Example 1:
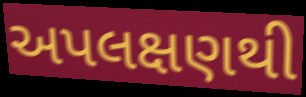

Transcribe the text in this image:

અપલક્ષણથી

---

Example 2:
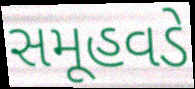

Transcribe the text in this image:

સમૂહવડે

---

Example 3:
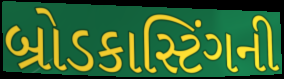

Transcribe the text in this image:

બ્રોડકાસ્ટિંગની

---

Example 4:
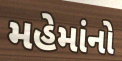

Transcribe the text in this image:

મહેમાંનો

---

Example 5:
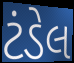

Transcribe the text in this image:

ટંડેલ